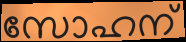
സോഹന്